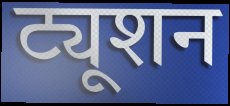
ट्यूशन